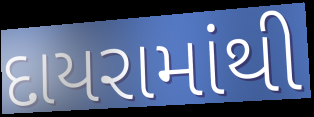
દાયરામાંથી